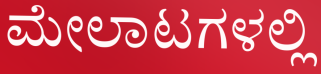
ಮೇಲಾಟಗಳಲ್ಲಿ